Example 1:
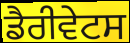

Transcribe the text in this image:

ਡੈਰੀਵੇਟਸ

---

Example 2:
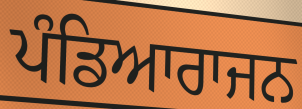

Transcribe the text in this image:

ਪੰਡਿਆਰਾਜਨ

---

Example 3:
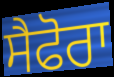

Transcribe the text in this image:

ਸੈਫੋਰਾ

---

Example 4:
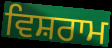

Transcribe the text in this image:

ਵਿਸ਼ਰਾਮ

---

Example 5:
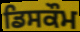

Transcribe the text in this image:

ਡਿਸਕੌਮ